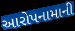
આરોપનામાની